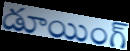
డూయింగ్